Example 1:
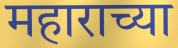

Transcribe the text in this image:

महाराच्या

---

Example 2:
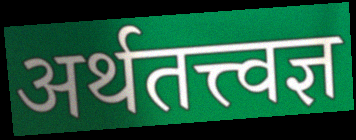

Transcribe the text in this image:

अर्थतत्त्वज्ञ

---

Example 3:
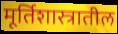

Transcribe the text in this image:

मूर्तिशास्त्रातील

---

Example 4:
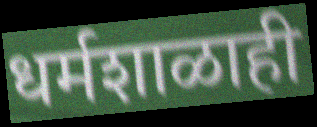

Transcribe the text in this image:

धर्मशाळाही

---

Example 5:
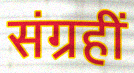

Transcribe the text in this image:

संग्रहीं